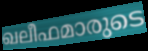
ഖലീഫമാരുടെ